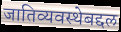
जातिव्यवस्थेबद्दल